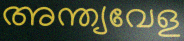
അന്ത്യവേള